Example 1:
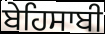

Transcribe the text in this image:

ਬੇਹਿਸਾਬੀ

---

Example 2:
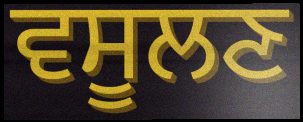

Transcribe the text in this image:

ਵਸੂਲਣ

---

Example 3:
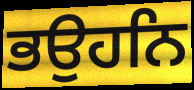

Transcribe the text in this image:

ਭਉਹਨਿ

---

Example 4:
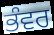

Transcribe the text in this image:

ਭੰਵਰ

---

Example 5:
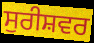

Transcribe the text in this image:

ਸੁਰੀਸ਼ਵਰ